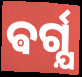
ଵର୍ଗ୍ଯ